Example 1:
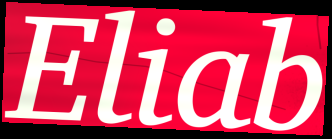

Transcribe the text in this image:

Eliab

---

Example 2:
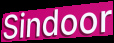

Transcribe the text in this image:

Sindoor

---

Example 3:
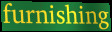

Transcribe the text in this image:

furnishing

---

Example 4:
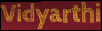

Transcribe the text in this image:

Vidyarthi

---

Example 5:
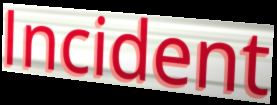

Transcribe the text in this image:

Incident